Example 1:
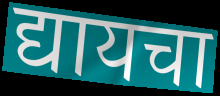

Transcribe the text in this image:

द्यायचा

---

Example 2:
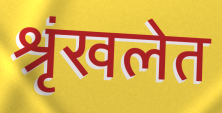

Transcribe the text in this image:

श्रृंखलेत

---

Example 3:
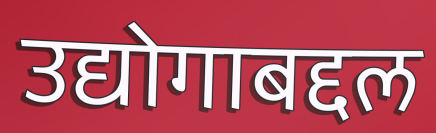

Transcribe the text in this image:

उद्योगाबद्दल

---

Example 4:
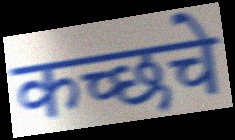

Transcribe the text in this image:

कच्छचे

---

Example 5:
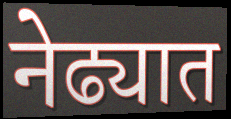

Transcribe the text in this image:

नेढ्यात